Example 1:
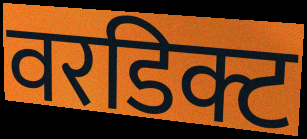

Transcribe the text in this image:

वरडिक्ट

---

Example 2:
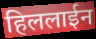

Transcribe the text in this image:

हिललाईन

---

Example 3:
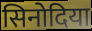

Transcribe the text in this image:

सिनोदिया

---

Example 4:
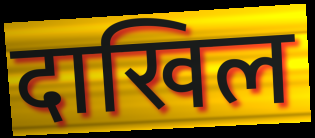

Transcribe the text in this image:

दाखिल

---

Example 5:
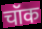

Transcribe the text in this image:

चॉक